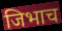
जिभाच